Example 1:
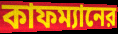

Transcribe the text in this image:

কাফম্যানের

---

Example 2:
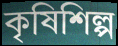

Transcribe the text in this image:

কৃষিশিল্প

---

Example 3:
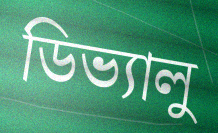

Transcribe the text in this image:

ডিভ্যালু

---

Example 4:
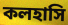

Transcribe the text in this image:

কলহাসি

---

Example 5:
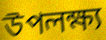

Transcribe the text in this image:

উপলক্ষ্য